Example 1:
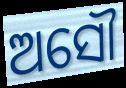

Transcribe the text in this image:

ଅସୌ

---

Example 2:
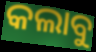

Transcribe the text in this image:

କଲାବୁ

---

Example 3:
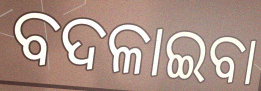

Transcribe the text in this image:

ବଦଳାଇବା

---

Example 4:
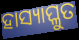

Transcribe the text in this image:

ହାସ୍ୟାପ୍ଳୁତ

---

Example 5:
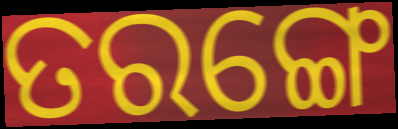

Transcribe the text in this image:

ତରଙ୍ଗେ